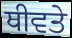
ਥੀਵਤੇ